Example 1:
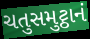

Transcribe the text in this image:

ચતુસમુટ્ઠાનં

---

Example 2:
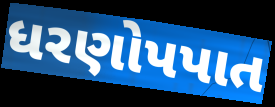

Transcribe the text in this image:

ધરણોપપાત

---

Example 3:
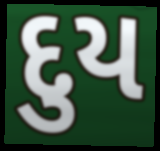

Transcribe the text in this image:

દુય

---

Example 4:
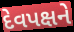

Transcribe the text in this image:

દેવપક્ષને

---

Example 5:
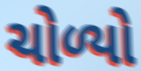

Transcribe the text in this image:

ચોળ્યો